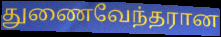
துணைவேந்தரான